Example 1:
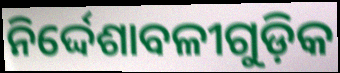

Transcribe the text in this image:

ନିର୍ଦ୍ଦେଶାବଳୀଗୁଡ଼ିକ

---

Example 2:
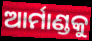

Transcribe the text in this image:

ଆର୍ମାଣ୍ଡକୁ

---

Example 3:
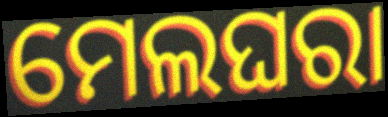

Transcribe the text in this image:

ମେଲଘରା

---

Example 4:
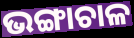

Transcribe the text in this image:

ଭଙ୍ଗାଚାଳ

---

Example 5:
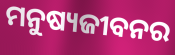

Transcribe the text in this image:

ମନୁଷ୍ୟଜୀବନର